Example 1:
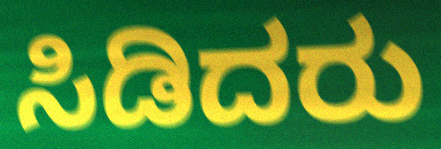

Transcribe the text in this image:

ಸಿಡಿದರು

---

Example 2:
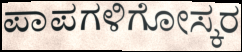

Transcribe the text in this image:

ಪಾಪಗಳಿಗೋಸ್ಕರ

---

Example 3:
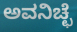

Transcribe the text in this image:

ಅವನಿಚ್ಛೆ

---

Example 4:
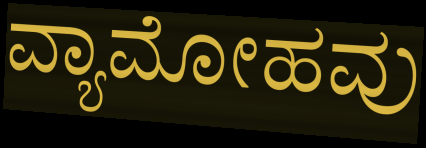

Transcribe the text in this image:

ವ್ಯಾಮೋಹವು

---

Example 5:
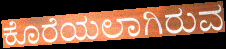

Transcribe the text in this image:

ಕೊರೆಯಲಾಗಿರುವ